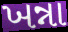
ખન્ના